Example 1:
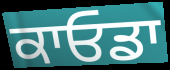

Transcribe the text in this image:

ਕਾਓਡਾ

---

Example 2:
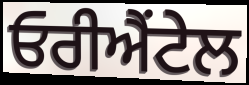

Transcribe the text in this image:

ਓਰੀਐਂਟੇਲ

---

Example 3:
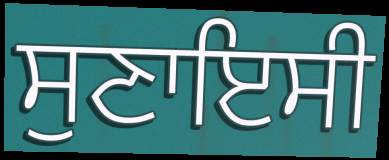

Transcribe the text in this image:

ਸੁਣਾਇਸੀ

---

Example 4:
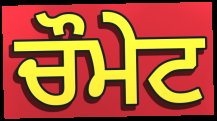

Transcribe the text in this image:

ਚੌਮੇਟ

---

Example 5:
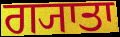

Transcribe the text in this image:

ਗ੍ਯਾਤਾ